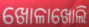
ଖୋଳାଖୋଲି